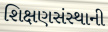
શિક્ષણસંસ્થાની